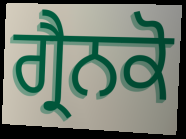
ਗ੍ਰੈਨਕੋ